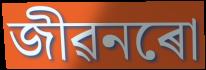
জীৱনৰো